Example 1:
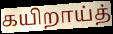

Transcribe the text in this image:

கயிறாய்த்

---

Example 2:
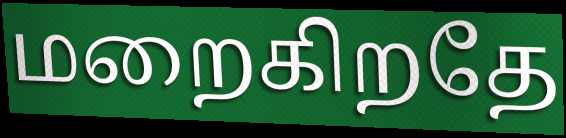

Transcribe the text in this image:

மறைகிறதே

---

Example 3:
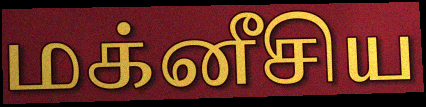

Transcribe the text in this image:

மக்னீசிய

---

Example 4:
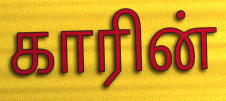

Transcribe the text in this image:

காரின்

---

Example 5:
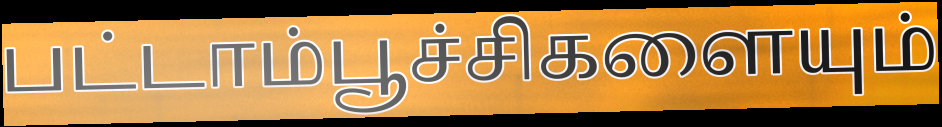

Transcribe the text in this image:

பட்டாம்பூச்சிகளையும்